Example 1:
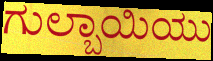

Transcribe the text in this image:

ಗುಲ್ಬಾಯಿಯು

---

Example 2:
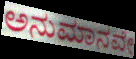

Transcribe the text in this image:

ಅನುಮಾನವೇ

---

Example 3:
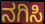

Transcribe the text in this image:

ನಗಿಸಿ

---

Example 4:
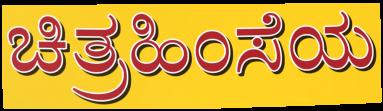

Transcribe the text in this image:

ಚಿತ್ರಹಿಂಸೆಯ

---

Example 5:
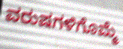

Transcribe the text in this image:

ವರುಷಗಳಿಗೊಮ್ಮೆ